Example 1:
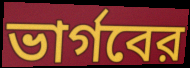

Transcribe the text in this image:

ভার্গবের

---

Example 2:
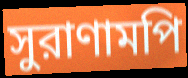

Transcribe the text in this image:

সুরাণামপি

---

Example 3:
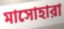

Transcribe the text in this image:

মাসোহারা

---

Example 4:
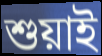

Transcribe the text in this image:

শুয়াই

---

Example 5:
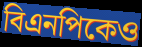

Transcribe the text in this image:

বিএনপিকেও